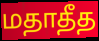
மதாதீத